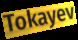
Tokayev